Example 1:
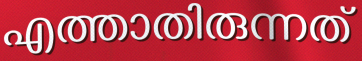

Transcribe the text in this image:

എത്താതിരുന്നത്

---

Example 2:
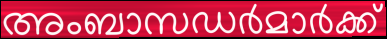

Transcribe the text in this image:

അംബാസഡർമാർക്ക്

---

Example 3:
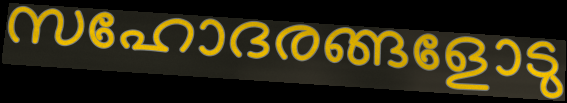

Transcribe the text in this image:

സഹോദരങ്ങളോടു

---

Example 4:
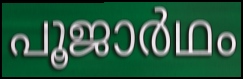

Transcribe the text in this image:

പൂജാർഥം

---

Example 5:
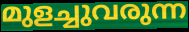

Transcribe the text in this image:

മുളച്ചുവരുന്ന